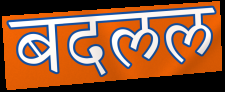
बदलल